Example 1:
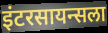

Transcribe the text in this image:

इंटरसायन्सला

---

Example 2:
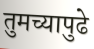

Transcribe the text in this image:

तुमच्यापुढे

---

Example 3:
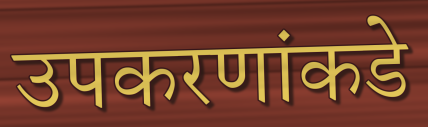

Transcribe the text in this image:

उपकरणांकडे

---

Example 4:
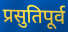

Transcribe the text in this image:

प्रसुतिपूर्व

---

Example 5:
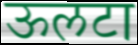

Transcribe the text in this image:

ऊलटा